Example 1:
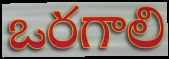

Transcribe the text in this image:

ఒరగాలి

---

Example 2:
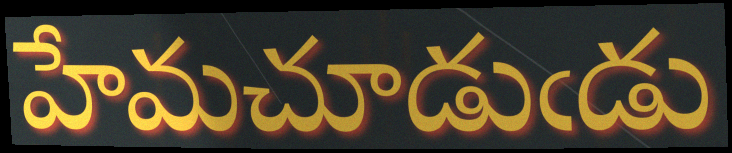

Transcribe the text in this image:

హేమచూడుఁడు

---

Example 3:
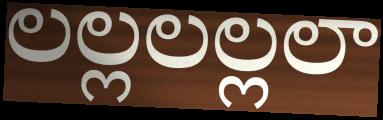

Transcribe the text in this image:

లల్లలల్లలా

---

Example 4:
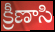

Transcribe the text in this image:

క్రీణాసి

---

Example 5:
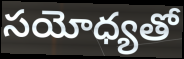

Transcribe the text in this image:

సయోధ్యతో